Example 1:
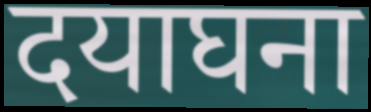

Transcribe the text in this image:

दयाघना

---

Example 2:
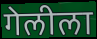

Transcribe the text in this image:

गेलीला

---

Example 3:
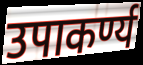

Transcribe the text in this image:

उपाकर्ण्य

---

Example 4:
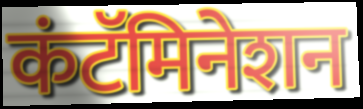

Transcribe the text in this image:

कंटॅमिनेशन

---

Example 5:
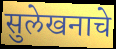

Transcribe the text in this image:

सुलेखनाचे